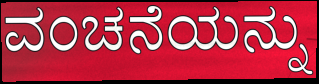
ವಂಚನೆಯನ್ನು